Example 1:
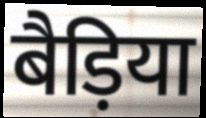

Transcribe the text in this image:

बैड़िया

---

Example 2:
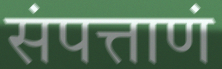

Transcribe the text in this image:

संपत्ताणं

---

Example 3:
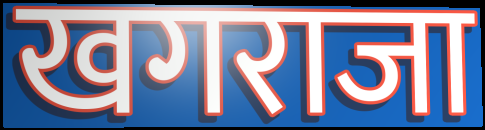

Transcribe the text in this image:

खगराजा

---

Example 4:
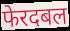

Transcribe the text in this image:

फेरदबल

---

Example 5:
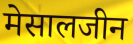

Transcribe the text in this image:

मेसालजीन